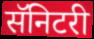
सॅनिटरी